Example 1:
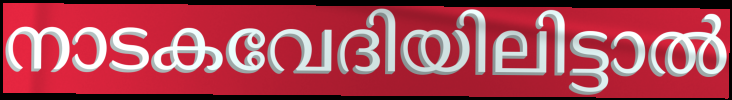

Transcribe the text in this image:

നാടകവേദിയിലിട്ടാൽ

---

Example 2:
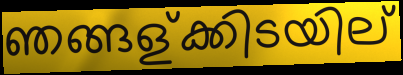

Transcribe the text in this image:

ഞങ്ങള്ക്കിടയില്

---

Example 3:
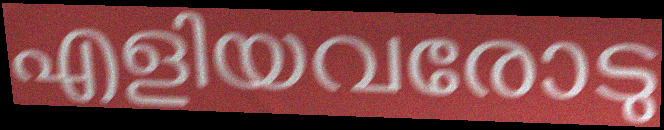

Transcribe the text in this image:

എളിയവരോടു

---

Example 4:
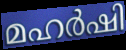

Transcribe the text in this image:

മഹർഷി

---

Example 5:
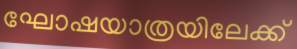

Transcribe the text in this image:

ഘോഷയാത്രയിലേക്ക്